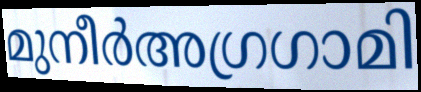
മുനീർഅഗ്രഗാമി